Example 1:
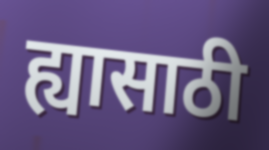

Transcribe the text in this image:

ह्यासाठी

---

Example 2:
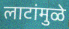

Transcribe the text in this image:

लाटांमुळे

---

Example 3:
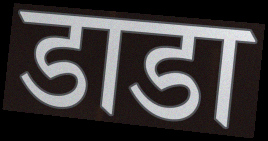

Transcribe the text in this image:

डाडा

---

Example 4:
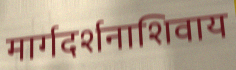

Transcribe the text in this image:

मार्गदर्शनाशिवाय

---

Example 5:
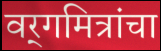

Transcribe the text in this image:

वर्गमित्रांचा